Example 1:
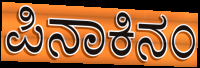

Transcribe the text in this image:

ಪಿನಾಕಿನಂ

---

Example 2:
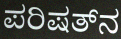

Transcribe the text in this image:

ಪರಿಷತ್‌ನ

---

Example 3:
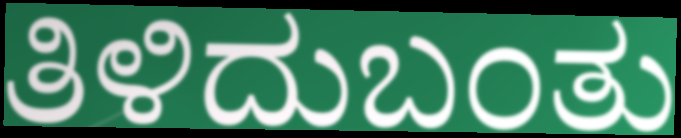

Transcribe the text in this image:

ತಿಳಿದುಬಂತು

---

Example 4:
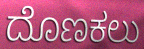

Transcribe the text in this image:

ದೊಣಕಲು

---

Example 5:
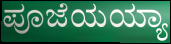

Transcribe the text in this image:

ಪೂಜೆಯಯ್ಯಾ